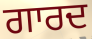
ਗਾਰਦ